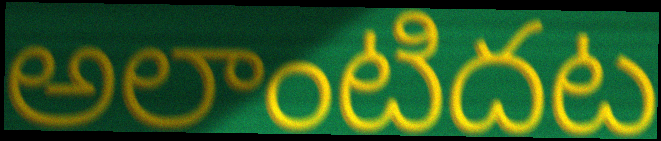
అలాంటిదట